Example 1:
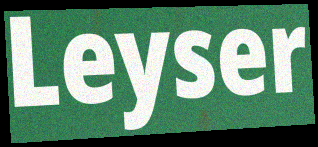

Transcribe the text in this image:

Leyser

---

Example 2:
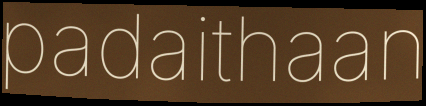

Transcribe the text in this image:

padaithaan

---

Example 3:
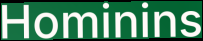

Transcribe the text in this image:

Hominins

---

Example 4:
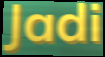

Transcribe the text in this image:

Jadi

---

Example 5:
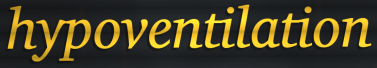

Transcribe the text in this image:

hypoventilation